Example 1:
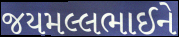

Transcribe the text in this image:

જયમલ્લભાઈને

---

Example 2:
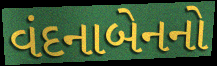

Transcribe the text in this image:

વંદનાબેનનો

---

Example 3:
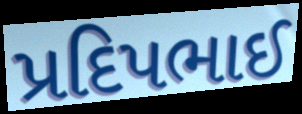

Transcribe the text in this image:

પ્રદિપભાઈ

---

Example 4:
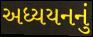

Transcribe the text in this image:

અધ્યયનનું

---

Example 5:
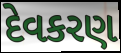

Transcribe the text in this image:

દેવકરણ